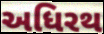
અધિરથ